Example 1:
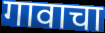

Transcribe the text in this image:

गावाचा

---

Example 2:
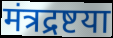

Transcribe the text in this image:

मंत्रद्रष्टया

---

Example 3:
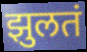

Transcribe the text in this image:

झुलतं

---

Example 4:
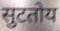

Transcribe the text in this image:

सुटतोय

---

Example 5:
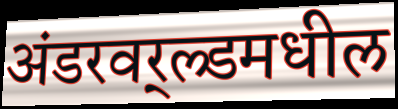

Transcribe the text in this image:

अंडरवर्ल्डमधील